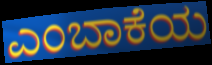
ಎಂಬಾಕೆಯ